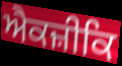
ਐਕਜ਼ੀਕਿ